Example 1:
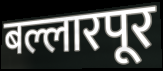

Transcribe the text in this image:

बल्लारपूर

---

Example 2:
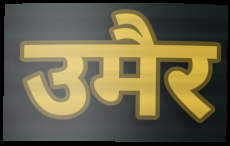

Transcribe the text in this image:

उमैर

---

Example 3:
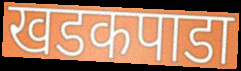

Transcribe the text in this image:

खडकपाडा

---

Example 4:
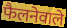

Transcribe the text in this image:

फैलनेवाले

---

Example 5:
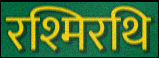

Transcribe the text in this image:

रश्मिरथि